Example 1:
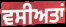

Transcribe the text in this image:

ਵਸੀਅਤਾਂ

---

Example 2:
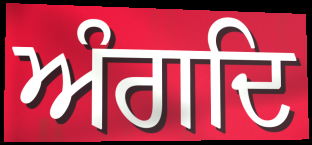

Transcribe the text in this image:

ਅੰਗਦਿ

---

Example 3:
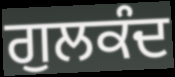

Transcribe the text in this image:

ਗੁਲਕੰਦ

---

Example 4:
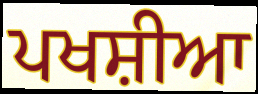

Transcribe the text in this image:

ਪਖਸ਼ੀਆ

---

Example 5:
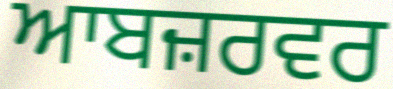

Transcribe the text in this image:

ਆਬਜ਼ਰਵਰ